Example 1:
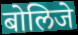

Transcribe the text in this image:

बोलिजे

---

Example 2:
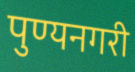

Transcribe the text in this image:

पुण्यनगरी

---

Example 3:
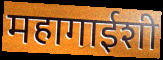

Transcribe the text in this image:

महागाईशी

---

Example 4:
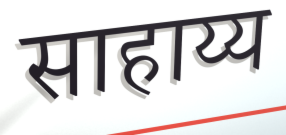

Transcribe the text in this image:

साहाय्य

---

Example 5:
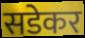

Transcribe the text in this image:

सडेकर